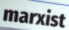
marxist